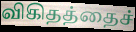
விகிதத்தைச்